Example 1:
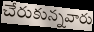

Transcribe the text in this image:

చేరుకున్నవారు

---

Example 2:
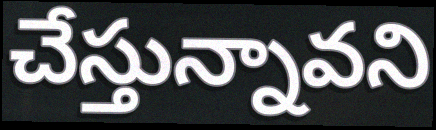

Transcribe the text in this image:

చేస్తున్నావని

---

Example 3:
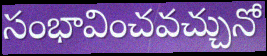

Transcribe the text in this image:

సంభావించవచ్చునో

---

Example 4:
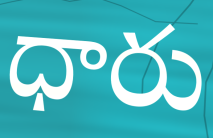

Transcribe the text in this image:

ధారు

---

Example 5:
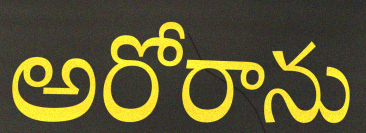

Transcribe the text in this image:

అరోరాను